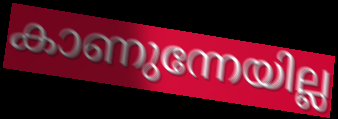
കാണുന്നേയില്ല